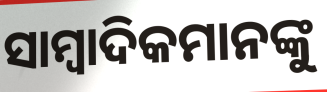
ସାମ୍ବାଦିକମାନଙ୍କୁ